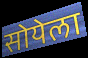
सोयेला